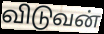
விடுவன்